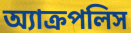
অ্যাক্রপলিস